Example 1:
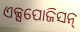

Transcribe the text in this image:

ଏକ୍ସପୋଜିସନ୍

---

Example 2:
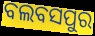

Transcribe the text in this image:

ବଲବସପୁର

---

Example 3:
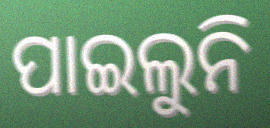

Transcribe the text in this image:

ପାଇଲୁନି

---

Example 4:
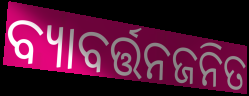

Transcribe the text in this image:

ବ୍ୟାବର୍ତ୍ତନଜନିତ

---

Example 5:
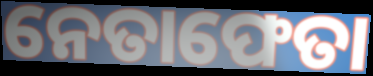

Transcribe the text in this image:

ନେତାଫେତା